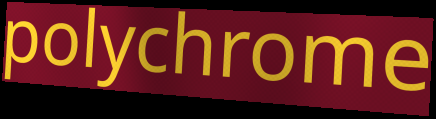
polychrome